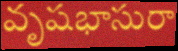
వృషభాసురా